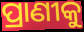
ପ୍ରାଣୀକୁ